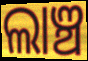
ଲାଞ୍ଚ